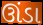
ઊંડા